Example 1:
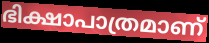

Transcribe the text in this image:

ഭിക്ഷാപാത്രമാണ്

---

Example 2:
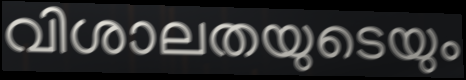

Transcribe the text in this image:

വിശാലതയുടെയും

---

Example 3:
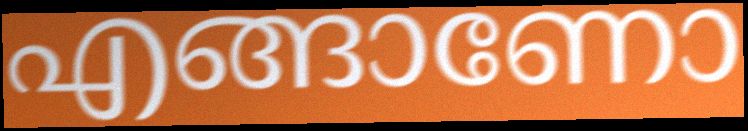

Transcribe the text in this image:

എങ്ങാണോ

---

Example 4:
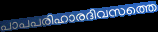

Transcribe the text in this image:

പാപപരിഹാരദിവസത്തെ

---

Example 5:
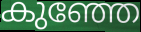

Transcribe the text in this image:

കുഞ്ഞേ